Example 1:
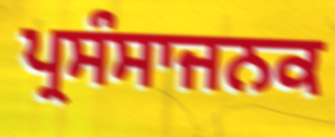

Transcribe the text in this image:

ਪ੍ਰਸੰਸਾਜਨਕ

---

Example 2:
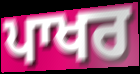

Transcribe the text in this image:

ਪਾਖਰ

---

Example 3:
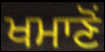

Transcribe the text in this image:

ਖਮਾਣੋਂ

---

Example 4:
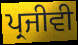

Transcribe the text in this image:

ਪ੍ਰਜੀਵੀ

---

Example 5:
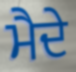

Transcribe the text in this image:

ਮੈਦੇ